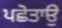
ਪਛੋਤਾਉ